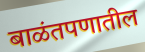
बाळंतपणातील